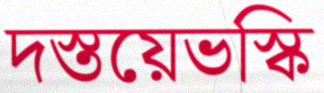
দস্তয়েভস্কি